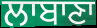
ਲਾਬਾਣਾ